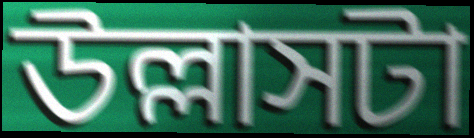
উল্লাসটা